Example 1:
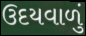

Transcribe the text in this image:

ઉદયવાળું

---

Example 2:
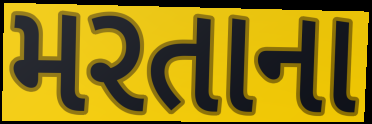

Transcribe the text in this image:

મરતાના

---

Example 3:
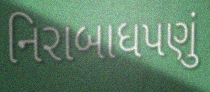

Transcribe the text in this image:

નિરાબાધપણું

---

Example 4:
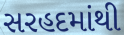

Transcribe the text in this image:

સરહદમાંથી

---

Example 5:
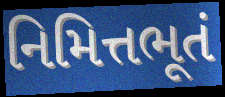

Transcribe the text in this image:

નિમિત્તભૂતં